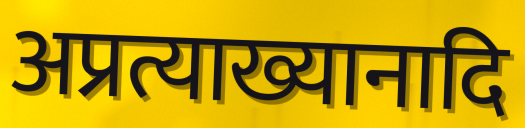
अप्रत्याख्यानादि